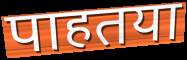
पाहतया